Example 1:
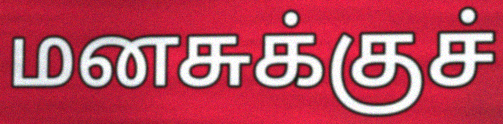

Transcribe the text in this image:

மனசுக்குச்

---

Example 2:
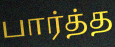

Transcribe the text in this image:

பார்த்த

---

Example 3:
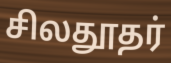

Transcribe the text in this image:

சிலதூதர்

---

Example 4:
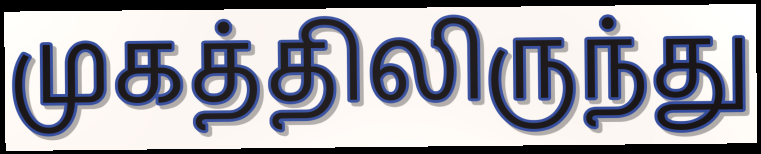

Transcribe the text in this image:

முகத்திலிருந்து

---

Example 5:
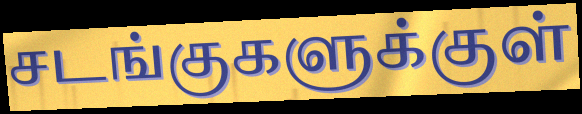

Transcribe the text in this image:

சடங்குகளுக்குள்